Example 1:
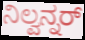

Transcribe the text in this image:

ನಿಲ್ವನ್ನರ್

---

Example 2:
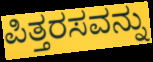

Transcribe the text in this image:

ಪಿತ್ತರಸವನ್ನು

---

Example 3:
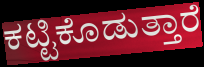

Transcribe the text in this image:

ಕಟ್ಟಿಕೊಡುತ್ತಾರೆ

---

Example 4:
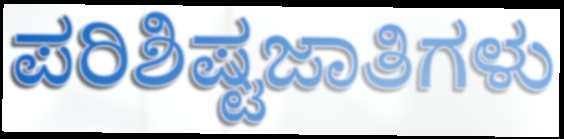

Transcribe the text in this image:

ಪರಿಶಿಷ್ಟಜಾತಿಗಳು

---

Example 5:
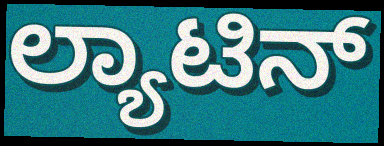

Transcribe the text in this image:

ಲ್ಯಾಟಿನ್